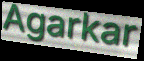
Agarkar